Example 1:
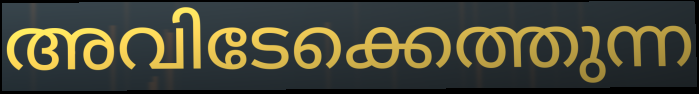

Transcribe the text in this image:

അവിടേക്കെത്തുന്ന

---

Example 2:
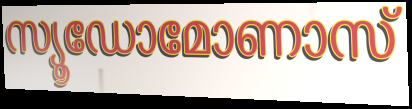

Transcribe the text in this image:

സ്യൂഡോമോണാസ്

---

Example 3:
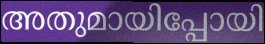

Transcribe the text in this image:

അതുമായിപ്പോയി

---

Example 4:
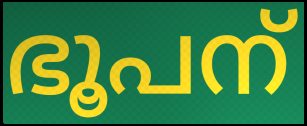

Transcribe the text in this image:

ഭൂപന്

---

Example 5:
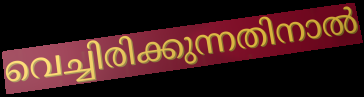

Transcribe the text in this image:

വെച്ചിരിക്കുന്നതിനാൽ